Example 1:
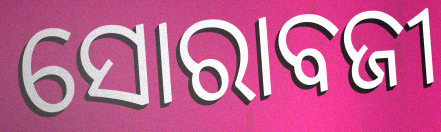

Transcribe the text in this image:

ସୋରାବଜୀ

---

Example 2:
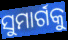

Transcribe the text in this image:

ସୁମାର୍ଗକୁ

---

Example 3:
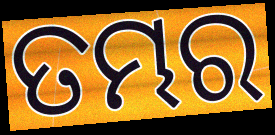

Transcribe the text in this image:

ତମ୍ଭର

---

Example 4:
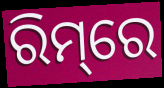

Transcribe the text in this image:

ରିମ୍‌ରେ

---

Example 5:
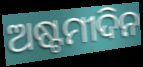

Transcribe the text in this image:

ଅଷ୍ଟମୀଦିନ